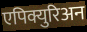
एपिक्युरिअन